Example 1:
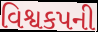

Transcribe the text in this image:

વિશ્વકપની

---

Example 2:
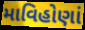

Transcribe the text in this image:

માવિહોણાં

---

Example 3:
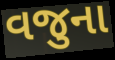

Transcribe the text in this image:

વજુના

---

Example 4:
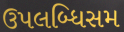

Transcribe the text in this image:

ઉપલબ્ધિસમ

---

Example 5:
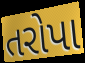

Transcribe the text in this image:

તરોપા